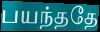
பயந்ததே